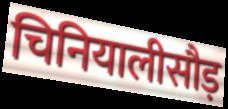
चिनियालीसौड़